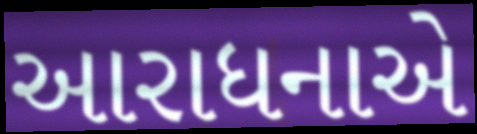
આરાધનાએ